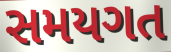
સમયગત